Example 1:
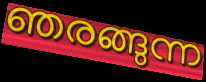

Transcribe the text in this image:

ഞരങ്ങുന്ന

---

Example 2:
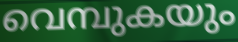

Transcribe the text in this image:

വെമ്പുകയും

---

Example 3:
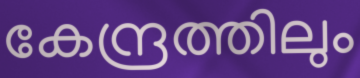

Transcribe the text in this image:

കേന്ദ്രത്തിലും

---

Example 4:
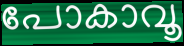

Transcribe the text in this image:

പോകാവൂ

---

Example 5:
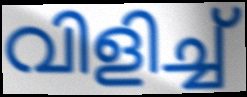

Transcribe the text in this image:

വിളിച്ച്